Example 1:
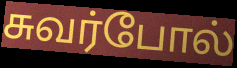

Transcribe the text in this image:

சுவர்போல்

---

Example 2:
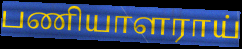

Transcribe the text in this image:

பணியாளராய்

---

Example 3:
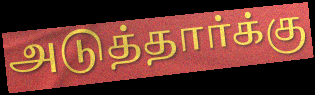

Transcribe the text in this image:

அடுத்தார்க்கு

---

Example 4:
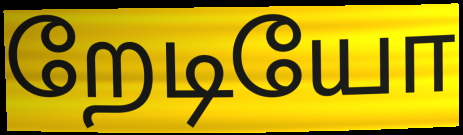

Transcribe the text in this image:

றேடியோ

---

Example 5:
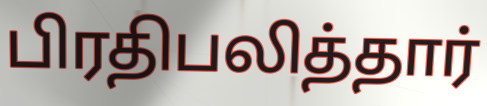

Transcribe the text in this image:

பிரதிபலித்தார்